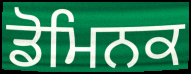
ਡੋਮਿਨਕ